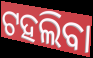
ଟହଲିବା